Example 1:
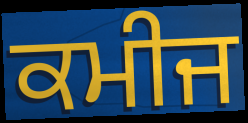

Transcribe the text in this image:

ਕਮੀਜ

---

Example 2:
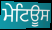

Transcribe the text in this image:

ਮੇਟਿਊਸ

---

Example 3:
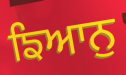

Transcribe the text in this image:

ਙਿਆਨੁ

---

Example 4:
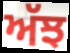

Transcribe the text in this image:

ਅੱਝ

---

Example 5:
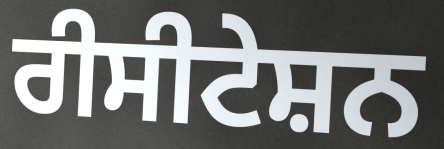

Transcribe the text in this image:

ਰੀਸੀਟੇਸ਼ਨ